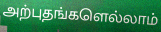
அற்புதங்களெல்லாம்